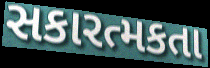
સકારત્મકતા